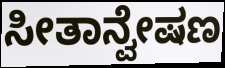
ಸೀತಾನ್ವೇಷಣ